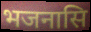
भजनासि